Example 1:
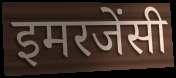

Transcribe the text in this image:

इमरजेंसी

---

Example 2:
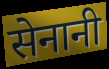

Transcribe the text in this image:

सेनानी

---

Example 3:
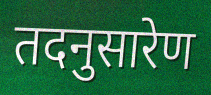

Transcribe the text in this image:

तदनुसारेण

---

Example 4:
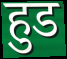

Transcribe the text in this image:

हुड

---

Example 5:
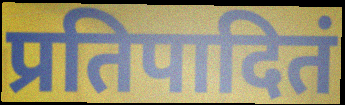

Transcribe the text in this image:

प्रतिपादितं